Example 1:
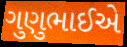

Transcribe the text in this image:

ગુણુભાઈએ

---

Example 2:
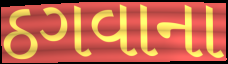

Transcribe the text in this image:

ઠગવાના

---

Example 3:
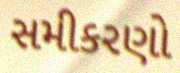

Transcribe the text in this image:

સમીકરણો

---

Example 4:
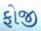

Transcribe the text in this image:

ફોજી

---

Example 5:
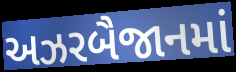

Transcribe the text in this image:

અઝરબૈજાનમાં